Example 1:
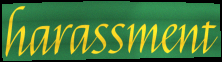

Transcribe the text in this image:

harassment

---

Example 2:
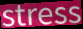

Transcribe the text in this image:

stress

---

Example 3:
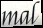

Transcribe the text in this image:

mal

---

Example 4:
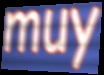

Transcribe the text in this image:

muy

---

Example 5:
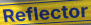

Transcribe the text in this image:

Reflector